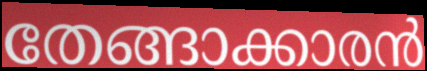
തേങ്ങാക്കാരൻ